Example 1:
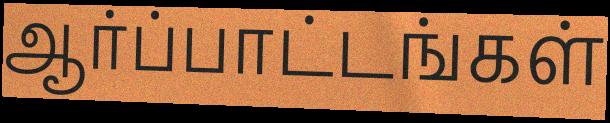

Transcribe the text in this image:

ஆர்ப்பாட்டங்கள்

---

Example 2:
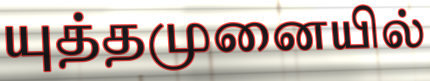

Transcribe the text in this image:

யுத்தமுனையில்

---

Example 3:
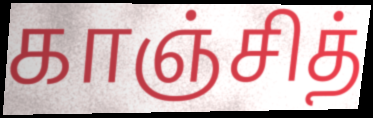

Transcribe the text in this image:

காஞ்சித்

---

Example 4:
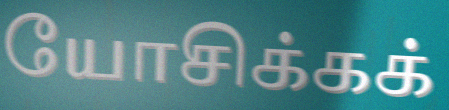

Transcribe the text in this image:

யோசிக்கக்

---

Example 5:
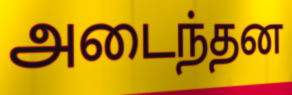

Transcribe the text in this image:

அடைந்தன